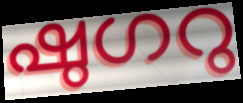
ഷുഗറു